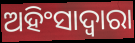
ଅହିଂସାଦ୍ୱାରା